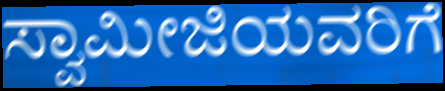
ಸ್ವಾಮೀಜಿಯವರಿಗೆ